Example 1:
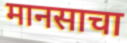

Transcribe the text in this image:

मानसाचा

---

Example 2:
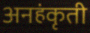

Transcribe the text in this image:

अनहंकृती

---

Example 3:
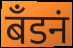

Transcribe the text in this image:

बँडनं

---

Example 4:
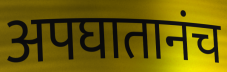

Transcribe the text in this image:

अपघातानंच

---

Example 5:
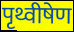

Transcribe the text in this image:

पृथ्वीषेण